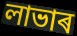
লাভাৰ